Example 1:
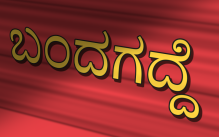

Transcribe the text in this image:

ಬಂದಗದ್ದೆ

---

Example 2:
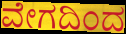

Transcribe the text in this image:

ವೇಗದಿಂದ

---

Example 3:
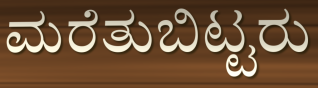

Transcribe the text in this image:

ಮರೆತುಬಿಟ್ಟರು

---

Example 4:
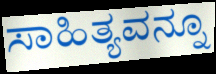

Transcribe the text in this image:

ಸಾಹಿತ್ಯವನ್ನೂ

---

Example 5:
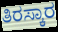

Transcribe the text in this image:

ತಿರಸ್ಕಾರ